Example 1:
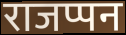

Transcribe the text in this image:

राजप्पन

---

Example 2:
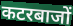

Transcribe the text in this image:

कटरबाजों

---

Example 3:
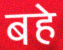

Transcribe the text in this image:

बहे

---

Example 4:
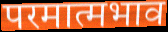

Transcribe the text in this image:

परमात्मभाव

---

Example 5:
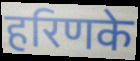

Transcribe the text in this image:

हरिणके